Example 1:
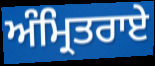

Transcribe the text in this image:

ਅੰਮ੍ਰਿਤਰਾਏ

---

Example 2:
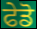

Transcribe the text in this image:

ਫੇਡੋ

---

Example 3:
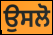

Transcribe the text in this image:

ਉਸਲੋ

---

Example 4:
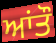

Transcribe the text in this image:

ਆਂਤੌ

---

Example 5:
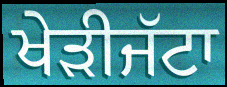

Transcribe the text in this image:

ਖੇੜੀਜੱਟਾ